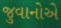
જુવાનોએ